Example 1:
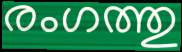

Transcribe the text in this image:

രംഗത്തു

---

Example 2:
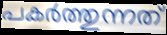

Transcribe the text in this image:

പകർത്തുന്നത്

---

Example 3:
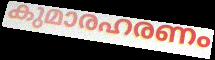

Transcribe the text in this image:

കുമാരഹരണം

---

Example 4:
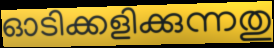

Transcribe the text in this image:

ഓടിക്കളിക്കുന്നതു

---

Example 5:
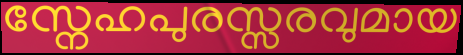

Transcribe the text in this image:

സ്നേഹപുരസ്സരവുമായ